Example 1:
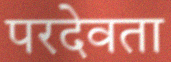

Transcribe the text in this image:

परदेवता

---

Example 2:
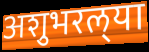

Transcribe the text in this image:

अश्रुभरल्या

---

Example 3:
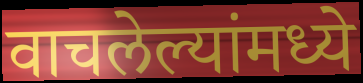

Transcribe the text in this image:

वाचलेल्यांमध्ये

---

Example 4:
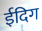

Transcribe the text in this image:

ईदिग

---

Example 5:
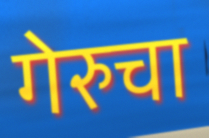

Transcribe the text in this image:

गेरुचा